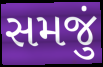
સમજું